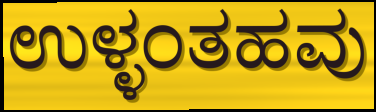
ಉಳ್ಳಂತಹವು